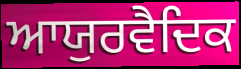
ਆਯੁਰਵੈਦਿਕ